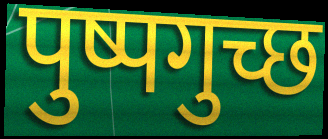
पुष्पगुच्छ